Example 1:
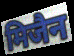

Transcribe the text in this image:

मिजैन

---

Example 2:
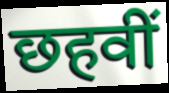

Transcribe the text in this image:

छहवीं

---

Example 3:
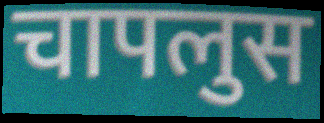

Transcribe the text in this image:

चापलुस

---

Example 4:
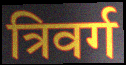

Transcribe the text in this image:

त्रिवर्ग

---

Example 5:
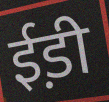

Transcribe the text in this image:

ई़डी